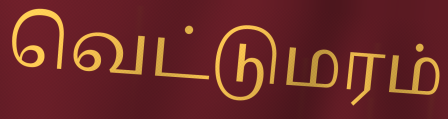
வெட்டுமரம்